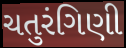
ચતુરંગિણી